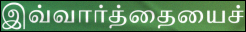
இவ்வார்த்தையைச்